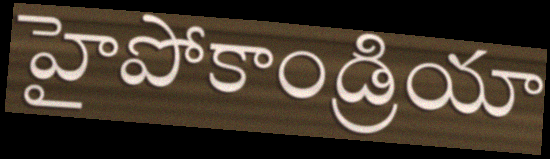
హైపోకాండ్రియా